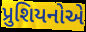
પ્રુશિયનોએ